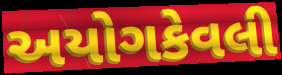
અયોગકેવલી